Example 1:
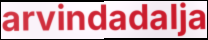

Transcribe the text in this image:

arvindadalja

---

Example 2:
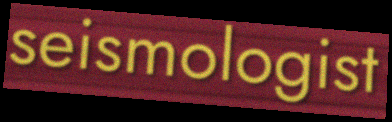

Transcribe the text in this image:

seismologist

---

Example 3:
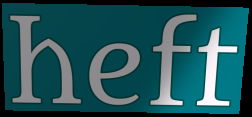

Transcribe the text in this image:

heft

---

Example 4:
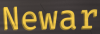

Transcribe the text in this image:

Newar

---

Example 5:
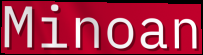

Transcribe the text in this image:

Minoan